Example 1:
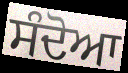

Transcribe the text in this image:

ਸੰਦੋਆ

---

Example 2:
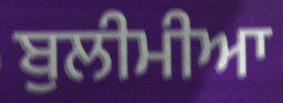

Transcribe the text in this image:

ਬੁਲੀਮੀਆ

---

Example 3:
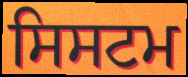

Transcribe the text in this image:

ਸਿਸਟਮ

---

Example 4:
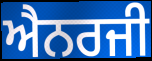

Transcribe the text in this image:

ਐਨਰਜੀ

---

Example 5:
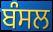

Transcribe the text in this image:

ਬੰਸਲ